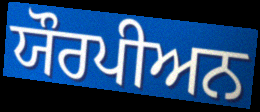
ਯੌਰਪੀਅਨ